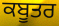
ਕਬੂਤਰ